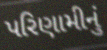
પરિણામીનું